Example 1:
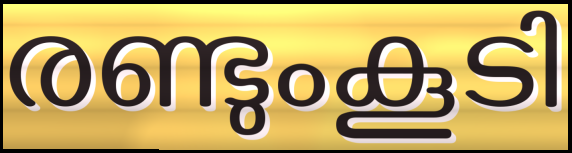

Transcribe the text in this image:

രണ്ടുംകൂടി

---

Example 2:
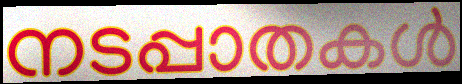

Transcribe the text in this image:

നടപ്പാതകൾ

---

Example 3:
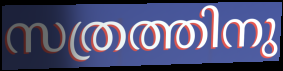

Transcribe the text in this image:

സത്രത്തിനു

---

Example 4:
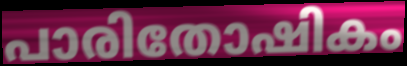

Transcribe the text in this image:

പാരിതോഷികം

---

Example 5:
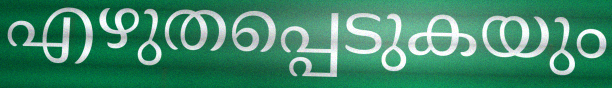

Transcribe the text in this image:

എഴുതപ്പെടുകയും